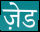
ज़ेड